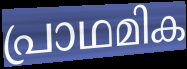
പ്രാഥമിക